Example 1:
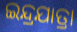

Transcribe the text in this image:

ଇନ୍ଦ୍ରଯାତ୍ରା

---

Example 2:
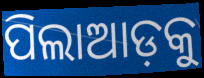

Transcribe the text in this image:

ପିଲାଆଡ଼କୁ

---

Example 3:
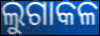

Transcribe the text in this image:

ଲୁଗାକଳ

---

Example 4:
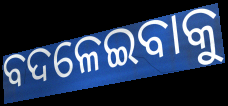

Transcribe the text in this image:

ବଦଳେଇବାକୁ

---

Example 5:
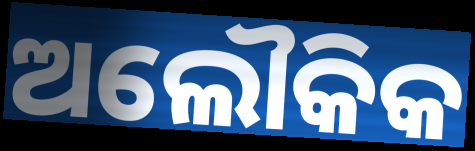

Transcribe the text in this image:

ଅଲୌକିକ